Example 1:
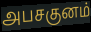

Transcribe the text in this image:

அபசகுனம்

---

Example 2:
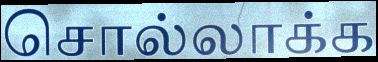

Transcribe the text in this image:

சொல்லாக்க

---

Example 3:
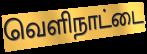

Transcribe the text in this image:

வெளிநாட்டை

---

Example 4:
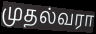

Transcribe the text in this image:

முதல்வரா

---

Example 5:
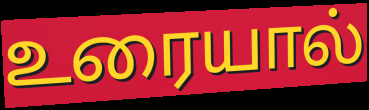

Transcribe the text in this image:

உரையால்